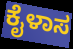
ಕೈಳಾಸ